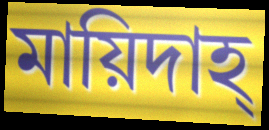
মায়িদাহ্